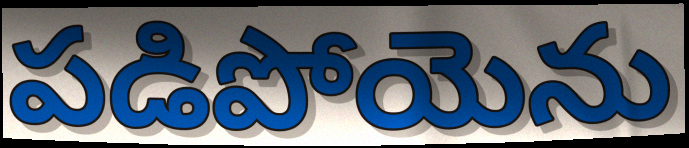
పడిపోయెను